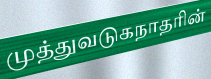
முத்துவடுகநாதரின்